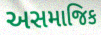
અસમાજિક